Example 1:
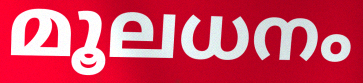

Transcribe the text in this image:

മൂലധനം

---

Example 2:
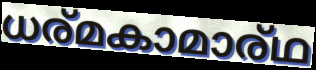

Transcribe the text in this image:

ധര്മകാമാര്ഥ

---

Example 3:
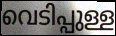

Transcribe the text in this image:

വെടിപ്പുള്ള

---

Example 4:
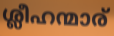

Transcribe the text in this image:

ശ്ലീഹന്മാര്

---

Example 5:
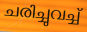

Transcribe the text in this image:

ചരിച്ചുവച്ച്